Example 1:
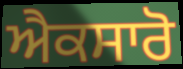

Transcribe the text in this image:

ਐਕਸਾਰੋ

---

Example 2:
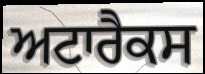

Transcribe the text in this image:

ਅਟਾਰੈਕਸ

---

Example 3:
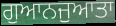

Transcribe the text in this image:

ਗੁਆਨਜੁਆਤਾ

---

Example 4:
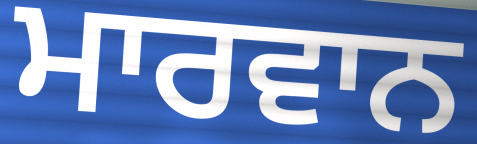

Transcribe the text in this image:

ਮਾਰਵਾਨ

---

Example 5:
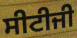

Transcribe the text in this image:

ਸੀਟੀਜੀ